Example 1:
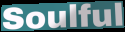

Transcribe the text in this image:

Soulful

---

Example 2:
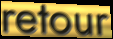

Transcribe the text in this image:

retour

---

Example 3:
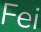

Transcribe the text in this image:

Fei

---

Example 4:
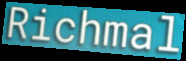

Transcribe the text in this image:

Richmal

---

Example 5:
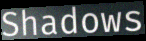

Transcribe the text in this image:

Shadows